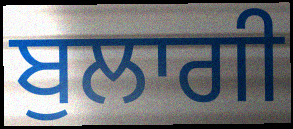
ਬੁਲਾਗੀ